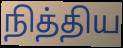
நித்திய